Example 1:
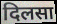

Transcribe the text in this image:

दिलसा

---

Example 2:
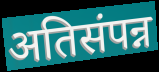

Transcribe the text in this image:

अतिसंपन्न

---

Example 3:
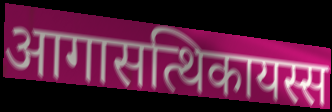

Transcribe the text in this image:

आगासत्थिकायस्स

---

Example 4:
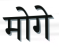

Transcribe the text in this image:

मोगे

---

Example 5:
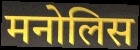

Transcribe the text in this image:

मनोलिस